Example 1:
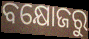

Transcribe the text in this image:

ବକ୍ଷୋଜରୁ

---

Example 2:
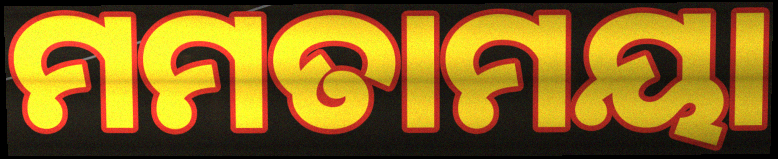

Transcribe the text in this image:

ମମତାମୟା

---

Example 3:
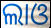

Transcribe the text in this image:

ଲାଓ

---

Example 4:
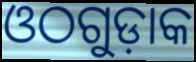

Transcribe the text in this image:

ଓଠଗୁଡ଼ାକ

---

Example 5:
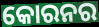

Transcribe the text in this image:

କୋରନର